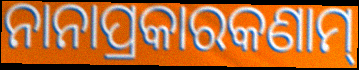
ନାନାପ୍ରକାରକଣାମ୍